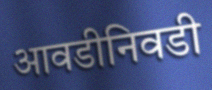
आवडीनिवडी